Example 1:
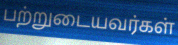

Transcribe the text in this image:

பற்றுடையவர்கள்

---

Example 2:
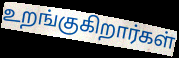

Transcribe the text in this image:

உறங்குகிறார்கள்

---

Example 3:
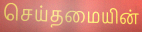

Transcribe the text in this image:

செய்தமையின்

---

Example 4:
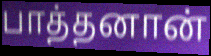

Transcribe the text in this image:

பாத்தனான்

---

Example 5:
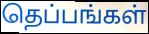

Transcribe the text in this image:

தெப்பங்கள்